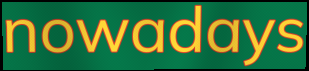
nowadays